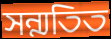
সন্মতিত